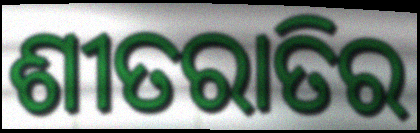
ଶୀତରାତିର